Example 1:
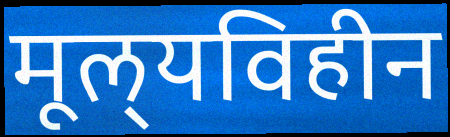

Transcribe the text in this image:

मूल्यविहीन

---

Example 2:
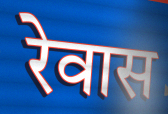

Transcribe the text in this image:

रेवास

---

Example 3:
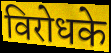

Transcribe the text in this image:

विरोधके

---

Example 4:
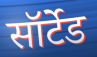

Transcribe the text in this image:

सॉर्टेड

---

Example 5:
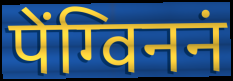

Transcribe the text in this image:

पेंग्विननं